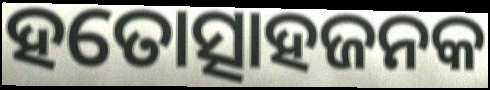
ହତୋତ୍ସାହଜନକ